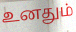
உனதும்